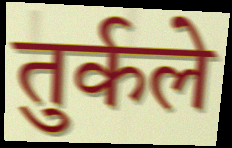
तुर्कले